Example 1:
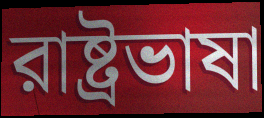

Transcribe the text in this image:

রাষ্ট্রভাষা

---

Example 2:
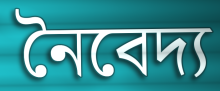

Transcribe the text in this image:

নৈবেদ্য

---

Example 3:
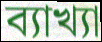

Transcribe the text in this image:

ব্যাখ্যা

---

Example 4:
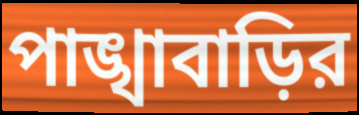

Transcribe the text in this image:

পাঙ্খাবাড়ির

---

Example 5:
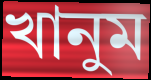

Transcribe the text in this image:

খানুম